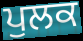
ਪੁਲਕ